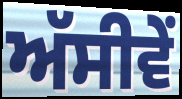
ਅੱਸੀਵੇਂ